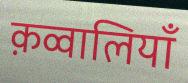
क़व्वालियाँ